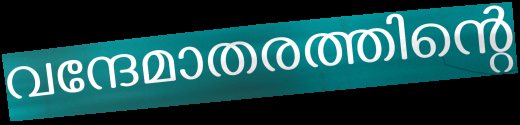
വന്ദേമാതരത്തിന്റെ